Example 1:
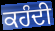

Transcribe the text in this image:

ਕਹੰਦੀ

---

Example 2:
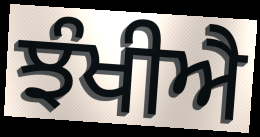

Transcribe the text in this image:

ਝੰਖੀਐ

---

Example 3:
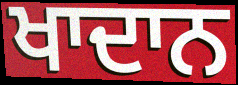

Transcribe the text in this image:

ਖਾਦਾਨ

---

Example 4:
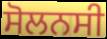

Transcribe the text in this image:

ਸੋਲਨਸੀ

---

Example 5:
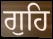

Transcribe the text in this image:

ਗੁਹਿ